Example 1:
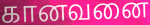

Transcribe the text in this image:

கானவனை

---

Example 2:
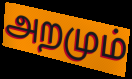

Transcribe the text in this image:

அறமும்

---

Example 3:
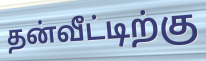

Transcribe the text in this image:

தன்வீட்டிற்கு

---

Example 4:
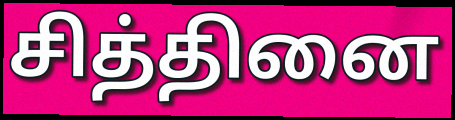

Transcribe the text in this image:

சித்தினை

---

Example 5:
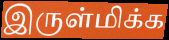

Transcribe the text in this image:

இருள்மிக்க